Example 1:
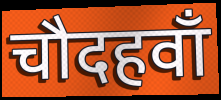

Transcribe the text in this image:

चौदहवाँ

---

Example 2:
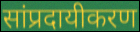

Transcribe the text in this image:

सांप्रदायीकरण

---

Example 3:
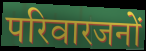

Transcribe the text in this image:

परिवारजनों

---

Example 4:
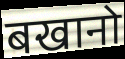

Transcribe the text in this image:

बखानो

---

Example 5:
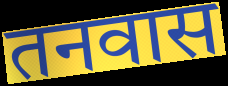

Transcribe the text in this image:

तनवास